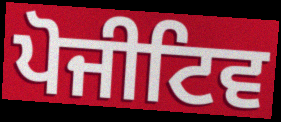
ਪੋਜੀਟਿਵ